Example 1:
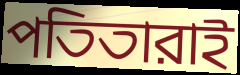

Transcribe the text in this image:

পতিতারাই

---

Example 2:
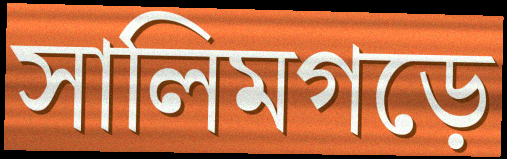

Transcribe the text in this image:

সালিমগড়ে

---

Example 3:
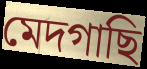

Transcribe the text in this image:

মেদগাছি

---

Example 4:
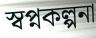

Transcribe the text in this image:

স্বপ্নকল্পনা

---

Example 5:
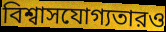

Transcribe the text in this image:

বিশ্বাসযোগ্যতারও